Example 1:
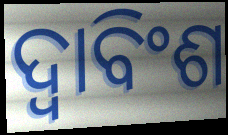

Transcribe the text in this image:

ଦ୍ଵାବିଂଶ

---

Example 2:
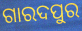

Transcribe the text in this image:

ଗାରଦପୁର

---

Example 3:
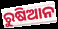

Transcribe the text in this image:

ରୁଷିଆନ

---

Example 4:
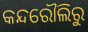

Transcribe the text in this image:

କନ୍ଦରୌଲିରୁ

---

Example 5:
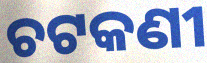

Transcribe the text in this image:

ଚଟକଣୀ